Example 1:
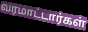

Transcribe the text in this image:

வரமாட்டார்கள்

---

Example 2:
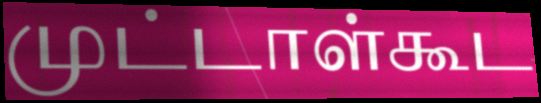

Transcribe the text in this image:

முட்டாள்கூட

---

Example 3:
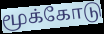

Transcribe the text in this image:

மூக்கோடு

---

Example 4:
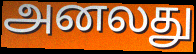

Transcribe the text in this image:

அனலது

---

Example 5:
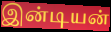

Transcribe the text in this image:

இன்டியன்